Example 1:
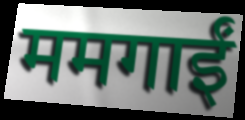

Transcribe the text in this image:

ममगाईं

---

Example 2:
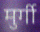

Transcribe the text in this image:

मुर्गी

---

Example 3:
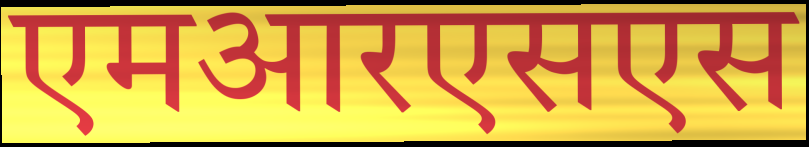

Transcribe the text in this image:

एमआरएसएस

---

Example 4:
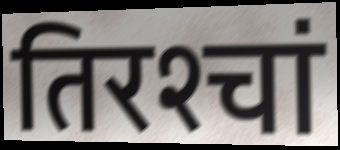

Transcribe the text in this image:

तिरश्चां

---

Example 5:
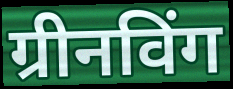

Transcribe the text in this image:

ग्रीनविंग